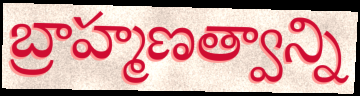
బ్రాహ్మణత్వాన్ని